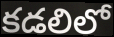
కడలిలో